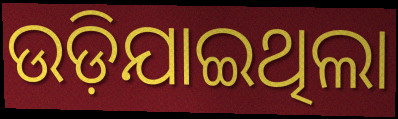
ଉଡ଼ିଯାଇଥିଲା